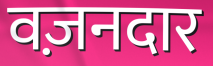
वज़नदार